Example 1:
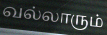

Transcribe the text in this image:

வல்லாரும்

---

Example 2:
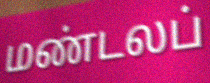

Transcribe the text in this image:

மண்டலப்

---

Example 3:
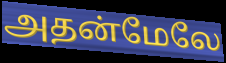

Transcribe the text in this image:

அதன்மேலே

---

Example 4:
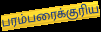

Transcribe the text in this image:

பரம்பரைக்குரிய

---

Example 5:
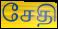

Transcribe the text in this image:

சேதி